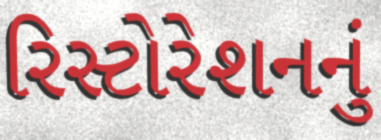
રિસ્ટોરેશનનું